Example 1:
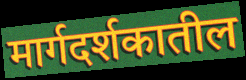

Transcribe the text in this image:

मार्गदर्शकातील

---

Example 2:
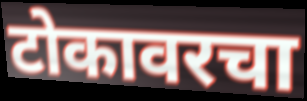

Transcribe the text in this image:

टोकावरचा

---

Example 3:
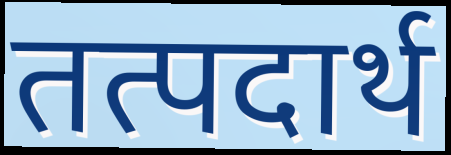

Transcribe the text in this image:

तत्पदार्थ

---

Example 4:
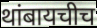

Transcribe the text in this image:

थांबायचीच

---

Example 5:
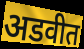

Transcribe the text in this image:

अडवीत